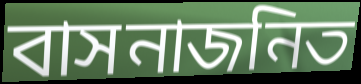
বাসনাজনিত